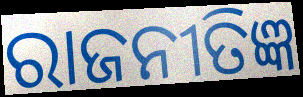
ରାଜନୀତିଜ୍ଞ